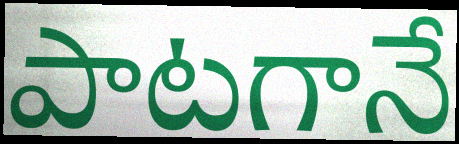
పాటగానే